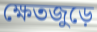
ক্ষেতজুড়ে